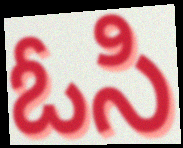
ఓసి